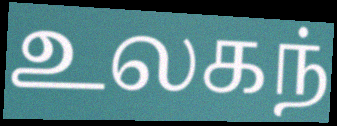
உலகந்